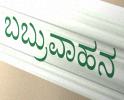
ಬಬ್ರುವಾಹನ